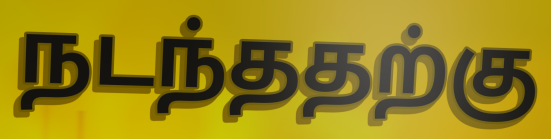
நடந்ததற்கு